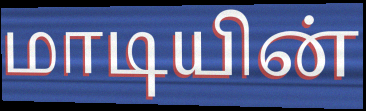
மாடியின்